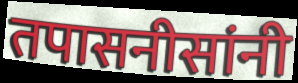
तपासनीसांनी